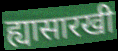
ह्यासारखी